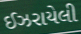
ઈઝરાયેલી